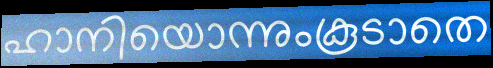
ഹാനിയൊന്നുംകൂടാതെ